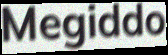
Megiddo